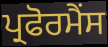
ਪ੍ਰਫੋਰਮੈਂਸ